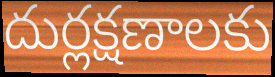
దుర్లక్షణాలకు